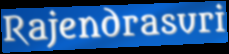
Rajendrasuri